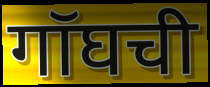
गॉघची